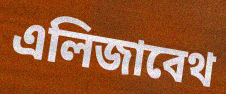
এলিজাবেথ